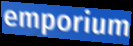
emporium